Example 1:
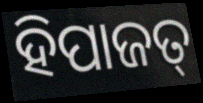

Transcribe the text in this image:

ହିପାଜତ୍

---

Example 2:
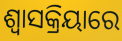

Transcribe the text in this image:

ଶ୍ୱାସକ୍ରିୟାରେ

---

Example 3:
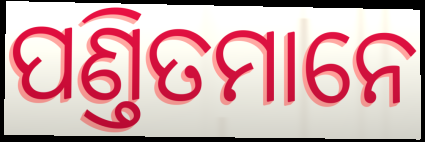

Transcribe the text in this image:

ପଣ୍ତିତମାନେ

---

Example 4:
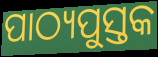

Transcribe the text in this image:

ପାଠ୍ୟପୁସ୍ତକ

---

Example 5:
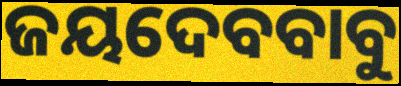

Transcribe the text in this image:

ଜୟଦେବବାବୁ